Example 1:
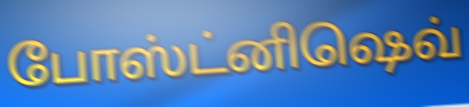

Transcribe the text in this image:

போஸ்ட்னிஷெவ்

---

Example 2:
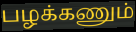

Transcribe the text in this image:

பழக்கணும்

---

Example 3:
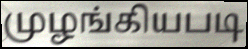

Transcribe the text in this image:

முழங்கியபடி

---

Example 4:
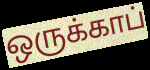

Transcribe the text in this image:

ஒருக்காப்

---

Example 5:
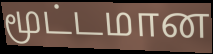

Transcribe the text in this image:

மூட்டமான